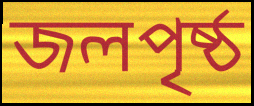
জলপৃষ্ঠ